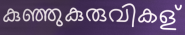
കുഞ്ഞുകുരുവികള്